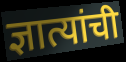
ज्ञात्यांची